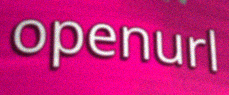
openurl